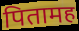
पितामह